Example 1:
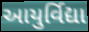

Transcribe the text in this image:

આયુર્વિદ્યા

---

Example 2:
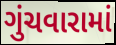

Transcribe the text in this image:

ગુંચવારામાં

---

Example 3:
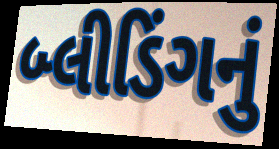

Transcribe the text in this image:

બ્લીડિંગનું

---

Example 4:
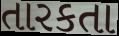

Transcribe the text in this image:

તારકતા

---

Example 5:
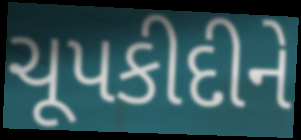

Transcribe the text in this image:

ચૂપકીદીને